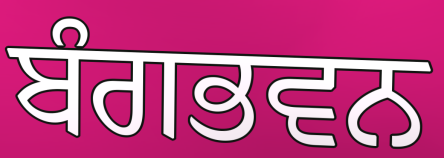
ਬੰਗਭਵਨ